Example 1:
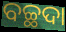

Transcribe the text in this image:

ବଚ୍ଛଦା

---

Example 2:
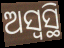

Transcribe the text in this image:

ଅସ୍ୱସ୍ଥି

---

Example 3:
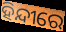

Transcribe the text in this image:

ହିନ୍ଦୀରେ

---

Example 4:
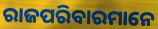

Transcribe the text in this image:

ରାଜପରିବାରମାନେ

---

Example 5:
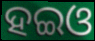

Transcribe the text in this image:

ହଇଓ